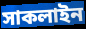
সাকলাইন